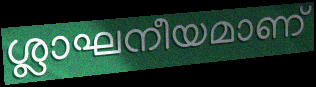
ശ്ലാഘനീയമാണ്